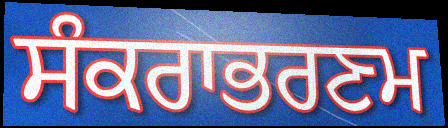
ਸੰਕਰਾਭਰਣਮ